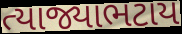
ત્યાજ્યાભટાય